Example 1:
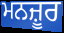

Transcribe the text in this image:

ਮਨਜ਼ੂਰ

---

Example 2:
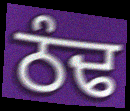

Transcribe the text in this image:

ਠੰਢ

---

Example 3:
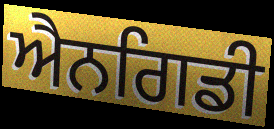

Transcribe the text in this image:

ਐਨਗਿਡੀ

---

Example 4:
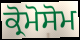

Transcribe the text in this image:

ਕ੍ਰੋਮੋਸੋਮ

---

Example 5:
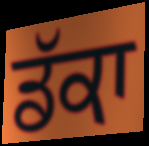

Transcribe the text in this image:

ਡੱਕਾ